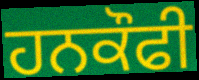
ਹਨਕੌਫੀ